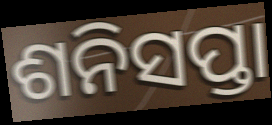
ଶନିସପ୍ତା